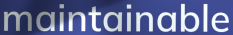
maintainable